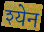
श्येन